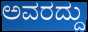
ಅವರದ್ದು